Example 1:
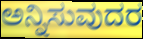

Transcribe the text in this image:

ಅನ್ನಿಸುವುದರ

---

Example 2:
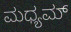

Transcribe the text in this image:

ಮಧ್ಯಮ್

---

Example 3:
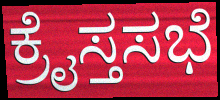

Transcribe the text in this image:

ಕ್ರೈಸ್ತಸಭೆ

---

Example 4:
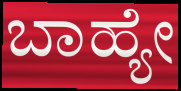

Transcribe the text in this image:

ಬಾಹ್ಯೇ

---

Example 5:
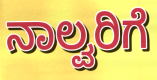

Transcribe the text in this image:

ನಾಲ್ವರಿಗೆ